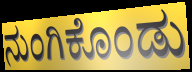
ನುಂಗಿಕೊಂಡು